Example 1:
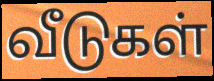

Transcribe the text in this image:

வீடுகள்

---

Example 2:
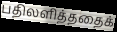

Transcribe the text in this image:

பதிலளித்ததைக்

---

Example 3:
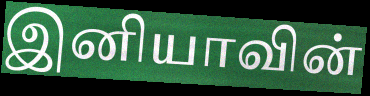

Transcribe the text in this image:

இனியாவின்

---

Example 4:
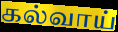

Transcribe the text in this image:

கல்வாய்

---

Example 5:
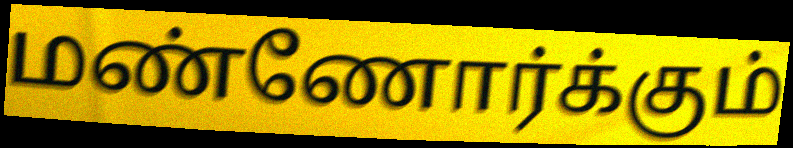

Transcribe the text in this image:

மண்ணோர்க்கும்